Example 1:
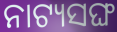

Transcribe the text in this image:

ନାଟ୍ୟସଙ୍ଘ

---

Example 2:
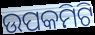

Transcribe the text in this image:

ଉପକମିଟି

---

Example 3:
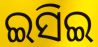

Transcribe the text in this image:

ଇସିଇ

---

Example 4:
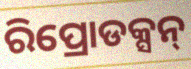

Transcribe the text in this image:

ରିପ୍ରୋଡକ୍ସନ୍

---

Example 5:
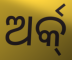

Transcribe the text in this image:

ଅର୍କ୍